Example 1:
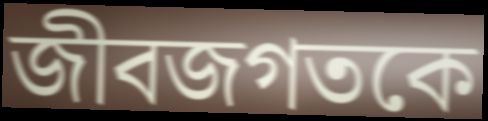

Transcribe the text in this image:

জীবজগতকে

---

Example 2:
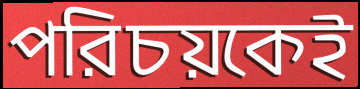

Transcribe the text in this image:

পরিচয়কেই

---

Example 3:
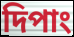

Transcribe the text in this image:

দিপাং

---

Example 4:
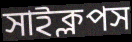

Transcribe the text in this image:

সাইক্লপস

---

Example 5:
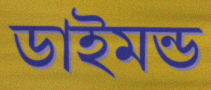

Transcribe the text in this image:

ডাইমন্ড